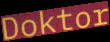
Doktor